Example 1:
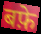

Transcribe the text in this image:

बफ़े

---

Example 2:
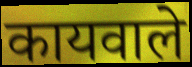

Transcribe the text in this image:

कायवाले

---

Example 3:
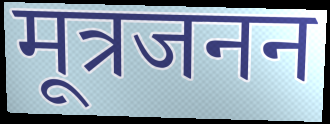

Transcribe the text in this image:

मूत्रजनन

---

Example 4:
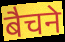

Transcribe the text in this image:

बैचने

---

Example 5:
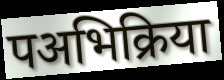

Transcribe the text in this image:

पअभिक्रिया